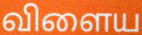
விளைய